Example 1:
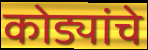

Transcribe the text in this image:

कोड्यांचे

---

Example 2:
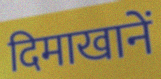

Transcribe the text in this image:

दिमाखानें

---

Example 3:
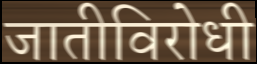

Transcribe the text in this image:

जातीविरोधी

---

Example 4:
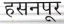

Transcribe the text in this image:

हसनपूर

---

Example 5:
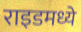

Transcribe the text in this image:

राइडमध्ये